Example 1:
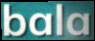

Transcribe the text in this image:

bala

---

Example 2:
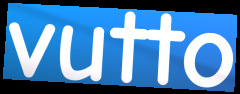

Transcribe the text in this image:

vutto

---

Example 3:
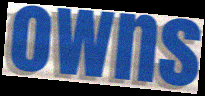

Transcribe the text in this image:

owns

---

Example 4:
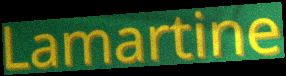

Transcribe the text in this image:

Lamartine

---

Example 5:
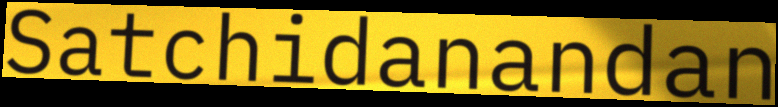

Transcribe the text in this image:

Satchidanandan